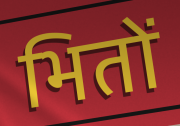
भितों